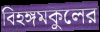
বিহঙ্গমকুলের